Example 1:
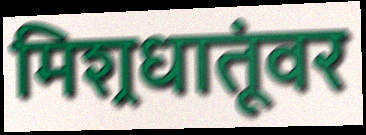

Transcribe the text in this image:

मिश्रधातूंवर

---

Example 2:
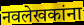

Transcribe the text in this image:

नवलेखकांना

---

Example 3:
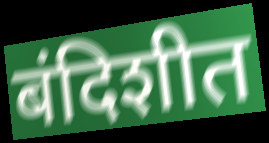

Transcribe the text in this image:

बंदिशीत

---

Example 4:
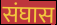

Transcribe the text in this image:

संघास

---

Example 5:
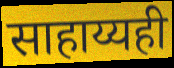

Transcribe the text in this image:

साहाय्यही